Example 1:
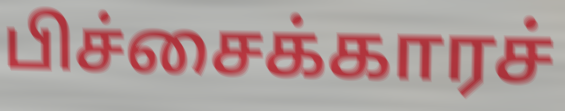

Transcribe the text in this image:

பிச்சைக்காரச்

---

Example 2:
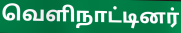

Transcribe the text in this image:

வெளிநாட்டினர்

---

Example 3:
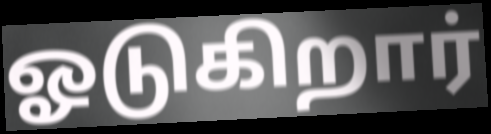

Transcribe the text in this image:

ஓடுகிறார்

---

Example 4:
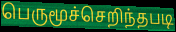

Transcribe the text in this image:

பெருமூச்செறிந்தபடி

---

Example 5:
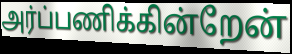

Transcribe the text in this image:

அர்ப்பணிக்கின்றேன்